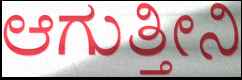
ಆಗುತ್ತೀನಿ